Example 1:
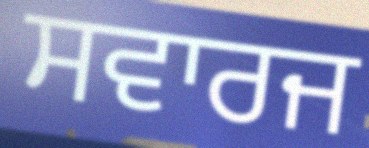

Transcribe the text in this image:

ਸਵਾਰਜ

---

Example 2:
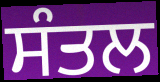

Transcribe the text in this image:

ਸੰਤਲ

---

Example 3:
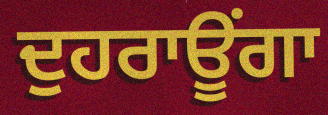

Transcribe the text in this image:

ਦੁਹਰਾਊਂਗਾ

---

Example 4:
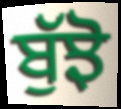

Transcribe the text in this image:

ਬੁੱਝੋ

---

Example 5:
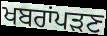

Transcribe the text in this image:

ਖਬਰਾਂਪੜਣ